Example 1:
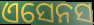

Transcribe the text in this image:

ଏସେନସ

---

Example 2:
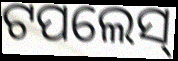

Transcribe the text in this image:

ଟପଲେସ୍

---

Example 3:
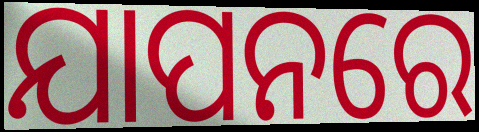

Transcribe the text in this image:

ଯାପନରେ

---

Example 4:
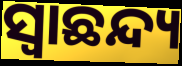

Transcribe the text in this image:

ସ୍ୱାଛନ୍ଦ୍ୟ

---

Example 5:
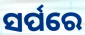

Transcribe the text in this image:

ସର୍ପରେ